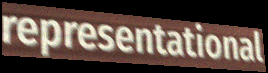
representational